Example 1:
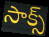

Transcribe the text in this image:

సాక్స్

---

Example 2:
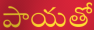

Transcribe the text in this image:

పాయతో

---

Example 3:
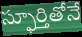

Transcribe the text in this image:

స్ఫూర్తితోనే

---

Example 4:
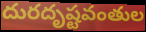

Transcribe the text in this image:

దురదృష్టవంతుల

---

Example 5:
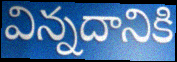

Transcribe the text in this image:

విన్నదానికి